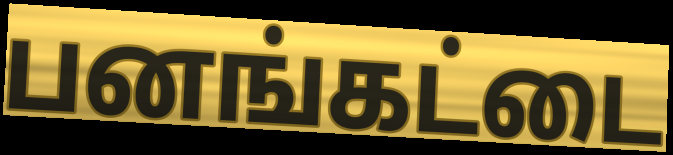
பனங்கட்டை